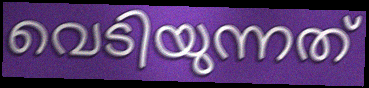
വെടിയുന്നത്